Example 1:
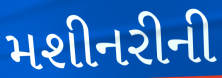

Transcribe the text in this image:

મશીનરીની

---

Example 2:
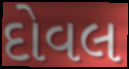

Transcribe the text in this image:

દોવલ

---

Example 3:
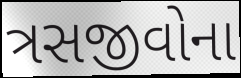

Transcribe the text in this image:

ત્રસજીવોના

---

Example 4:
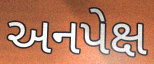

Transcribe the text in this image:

અનપેક્ષ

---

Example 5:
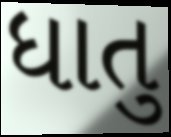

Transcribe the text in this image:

ધાતુ